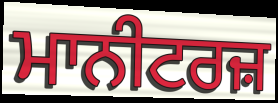
ਮਾਨੀਟਰਜ਼